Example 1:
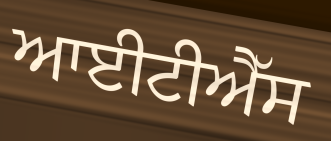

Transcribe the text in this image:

ਆਈਟੀਐੱਸ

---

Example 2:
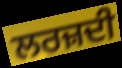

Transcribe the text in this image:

ਲਰਜ਼ਦੀ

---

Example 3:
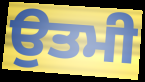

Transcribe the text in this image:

ਉਤਮੀ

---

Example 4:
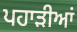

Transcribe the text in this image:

ਪਹਾਡ਼ੀਆਂ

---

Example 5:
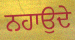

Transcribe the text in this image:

ਨਹਾਉਦੇ